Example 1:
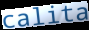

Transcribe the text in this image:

calita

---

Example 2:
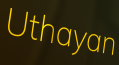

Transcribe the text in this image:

Uthayan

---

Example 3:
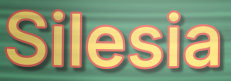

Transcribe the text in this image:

Silesia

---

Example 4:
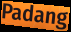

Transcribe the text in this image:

Padang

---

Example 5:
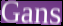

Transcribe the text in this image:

Gans